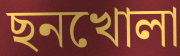
ছনখোলা